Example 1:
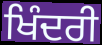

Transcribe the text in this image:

ਖਿੰਦਰੀ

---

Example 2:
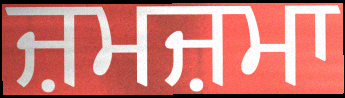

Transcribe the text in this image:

ਜ਼ਮਜ਼ਮਾ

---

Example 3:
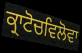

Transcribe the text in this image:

ਕ੍ਰਾਟੋਚਵਿਲੋਵਾ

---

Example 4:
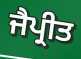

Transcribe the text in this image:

ਜੈਪ੍ਰੀਤ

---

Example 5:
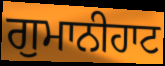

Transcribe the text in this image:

ਗੁਮਾਨੀਹਾਟ